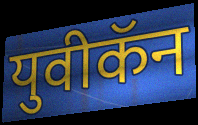
युवीकॅन